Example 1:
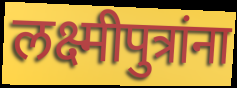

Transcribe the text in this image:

लक्ष्मीपुत्रांना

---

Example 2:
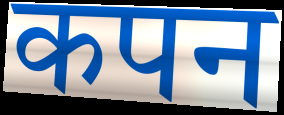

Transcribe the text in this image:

कपन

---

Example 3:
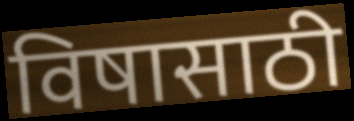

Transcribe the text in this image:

विषासाठी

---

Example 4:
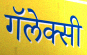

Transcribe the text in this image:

गॅलेक्सी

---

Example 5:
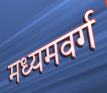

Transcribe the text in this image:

मध्यमवर्ग